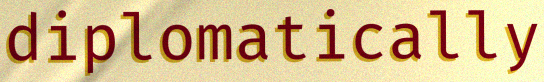
diplomatically